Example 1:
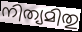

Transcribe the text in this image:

നിത്യമിതു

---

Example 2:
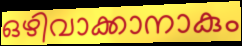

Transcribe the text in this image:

ഒഴിവാക്കാനാകും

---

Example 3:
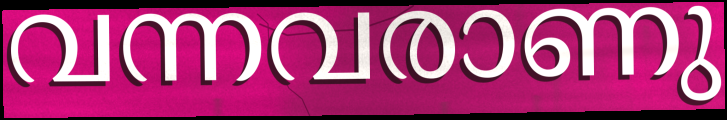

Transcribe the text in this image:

വന്നവരാണു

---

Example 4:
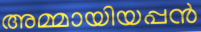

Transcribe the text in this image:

അമ്മായിയപ്പൻ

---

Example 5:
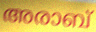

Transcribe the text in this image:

അരാബ്